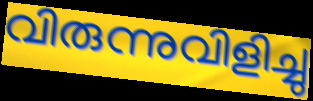
വിരുന്നുവിളിച്ചു